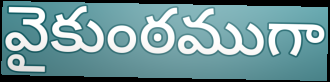
వైకుంఠముగా